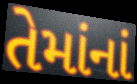
તેમાંનાં